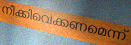
നീക്കിവെക്കണമെന്ന്